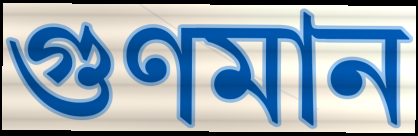
গুণমান